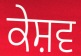
ਕੇਸ਼ਵ